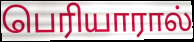
பெரியாரால்